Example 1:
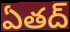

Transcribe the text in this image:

ఏతద్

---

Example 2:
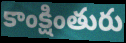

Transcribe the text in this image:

కాంక్షింతురు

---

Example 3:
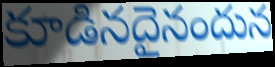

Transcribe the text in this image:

కూడినదైనందున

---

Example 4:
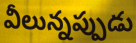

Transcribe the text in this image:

వీలున్నప్పుడు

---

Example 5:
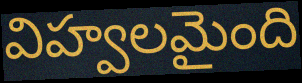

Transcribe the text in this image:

విహ్వలమైంది